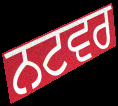
ਨਟਵਰ